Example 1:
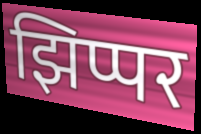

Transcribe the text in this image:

झिप्पर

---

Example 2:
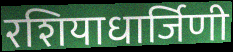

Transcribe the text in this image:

रशियाधार्जिणी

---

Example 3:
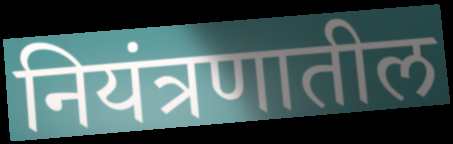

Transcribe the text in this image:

नियंत्रणातील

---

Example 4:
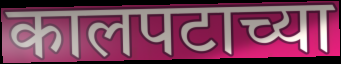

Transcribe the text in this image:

कालपटाच्या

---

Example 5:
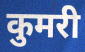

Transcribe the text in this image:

कुमरी